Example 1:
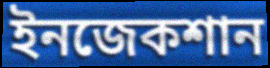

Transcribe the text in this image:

ইনজেকশান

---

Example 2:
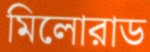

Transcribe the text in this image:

মিলোরাড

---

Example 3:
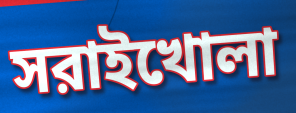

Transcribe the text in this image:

সরাইখোলা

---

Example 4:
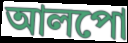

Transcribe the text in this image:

আলপো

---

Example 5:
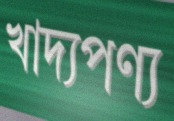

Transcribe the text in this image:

খাদ্যপণ্য